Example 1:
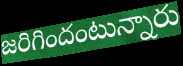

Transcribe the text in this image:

జరిగిందంటున్నారు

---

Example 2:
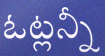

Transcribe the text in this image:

ఓట్లన్నీ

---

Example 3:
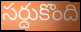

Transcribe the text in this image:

సర్దుకొంది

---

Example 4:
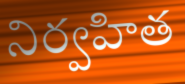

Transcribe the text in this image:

నిర్వహిత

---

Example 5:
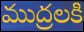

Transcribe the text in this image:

ముద్రలకి